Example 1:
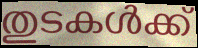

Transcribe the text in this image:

തുടകൾക്ക്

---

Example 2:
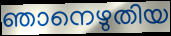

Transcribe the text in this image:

ഞാനെഴുതിയ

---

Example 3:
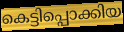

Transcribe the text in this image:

കെട്ടിപ്പൊക്കിയ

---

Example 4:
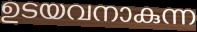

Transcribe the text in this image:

ഉടയവനാകുന്ന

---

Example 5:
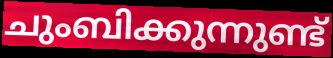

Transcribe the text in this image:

ചുംബിക്കുന്നുണ്ട്